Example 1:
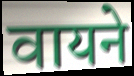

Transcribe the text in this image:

वायने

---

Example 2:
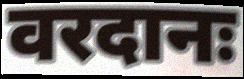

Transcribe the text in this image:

वरदानः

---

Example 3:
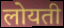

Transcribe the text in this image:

लोयती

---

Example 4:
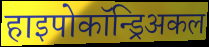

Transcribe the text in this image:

हाइपोकॉन्ड्रिअकल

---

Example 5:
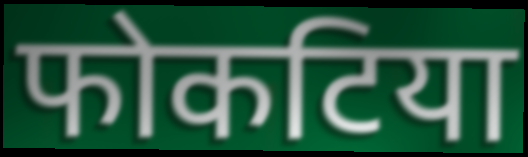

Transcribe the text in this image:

फोकटिया